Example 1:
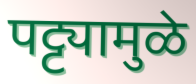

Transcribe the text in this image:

पट्ट्यामुळे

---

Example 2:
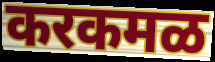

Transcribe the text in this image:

करकमळ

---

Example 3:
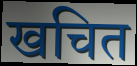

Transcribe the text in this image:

खचित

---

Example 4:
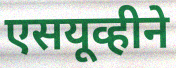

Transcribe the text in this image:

एसयूव्हीने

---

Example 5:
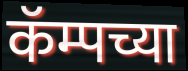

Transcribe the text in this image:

कॅम्पच्या